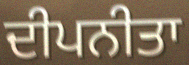
ਦੀਪਨੀਤਾ